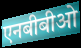
एनबीबीओ